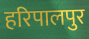
हरिपालपुर